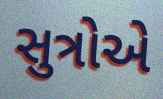
સુત્રોએ